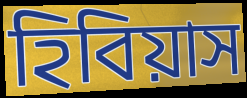
হিবিয়াস